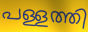
പള്ളത്തി